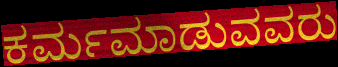
ಕರ್ಮಮಾಡುವವರು